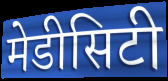
मेडीसिटी